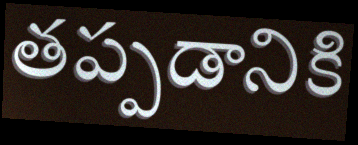
తప్పడానికి